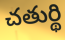
చతుర్థి